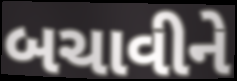
બચાવીને